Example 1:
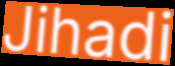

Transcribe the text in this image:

Jihadi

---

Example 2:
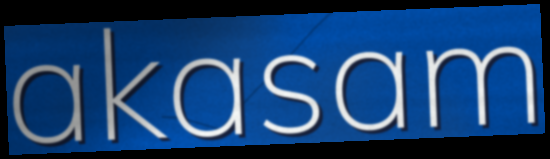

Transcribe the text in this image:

akasam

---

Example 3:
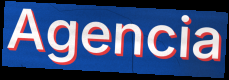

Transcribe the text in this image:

Agencia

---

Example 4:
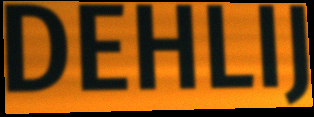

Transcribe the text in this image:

DEHLIJ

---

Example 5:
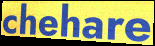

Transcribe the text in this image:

chehare